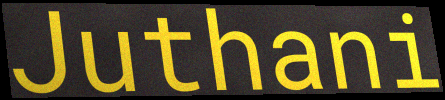
Juthani